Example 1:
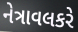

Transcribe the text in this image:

નેત્રાવલકરે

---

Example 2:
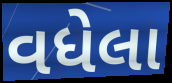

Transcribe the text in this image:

વધેલા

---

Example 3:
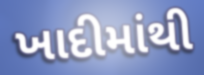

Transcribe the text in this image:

ખાદીમાંથી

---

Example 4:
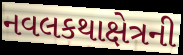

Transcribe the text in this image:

નવલકથાક્ષેત્રની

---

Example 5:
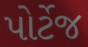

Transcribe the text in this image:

પોર્ટેજ